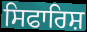
ਸਿਫਾਰਿਸ਼